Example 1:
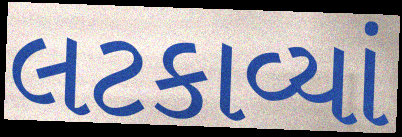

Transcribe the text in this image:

લટકાવ્યાં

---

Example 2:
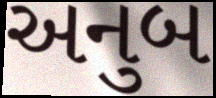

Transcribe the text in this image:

અનુબ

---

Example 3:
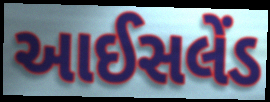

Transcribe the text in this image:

આઈસલેંડ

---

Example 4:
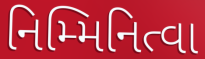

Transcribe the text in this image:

નિમ્મિનિત્વા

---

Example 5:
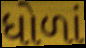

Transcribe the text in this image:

ધોળાં